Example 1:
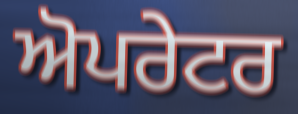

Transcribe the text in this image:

ਅੋਪਰੇਟਰ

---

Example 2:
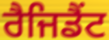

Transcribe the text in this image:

ਰੈਜਿਡੈਂਟ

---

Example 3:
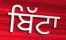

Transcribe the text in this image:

ਬਿੱਟਾ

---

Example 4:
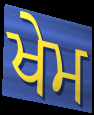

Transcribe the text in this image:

ਖੇਮ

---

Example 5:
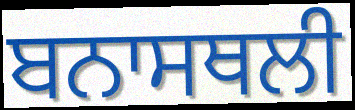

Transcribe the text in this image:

ਬਨਾਸਥਲੀ